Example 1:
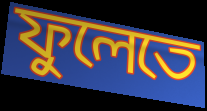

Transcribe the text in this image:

ফুলেতে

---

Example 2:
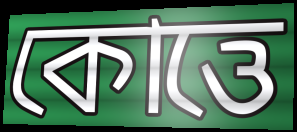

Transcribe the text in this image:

কোত্তে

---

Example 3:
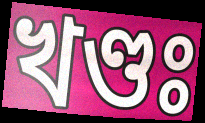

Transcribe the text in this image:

খণ্ডঃ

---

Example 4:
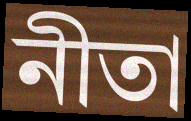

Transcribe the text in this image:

নীতা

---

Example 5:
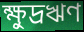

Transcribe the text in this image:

ক্ষুদ্রঋণ